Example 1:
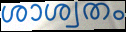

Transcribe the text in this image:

ശാശ്വതം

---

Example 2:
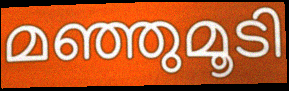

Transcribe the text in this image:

മഞ്ഞുമൂടി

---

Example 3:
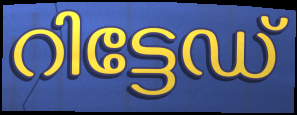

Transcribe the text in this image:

റിട്ടേഡ്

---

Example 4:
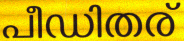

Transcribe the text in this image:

പീഡിതര്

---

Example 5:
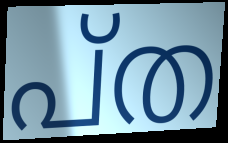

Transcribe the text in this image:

പ്ത